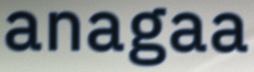
anagaa